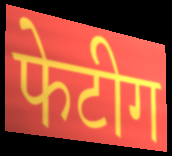
फेटीग